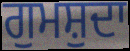
ਗੁਮਸ਼ੁਦਾ